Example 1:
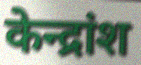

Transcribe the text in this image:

केन्द्रांश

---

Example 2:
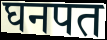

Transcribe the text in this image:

घनपत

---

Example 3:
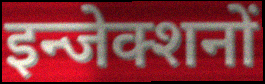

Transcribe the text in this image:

इन्जेक्शनों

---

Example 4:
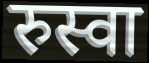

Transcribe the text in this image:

रुस्वा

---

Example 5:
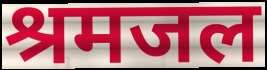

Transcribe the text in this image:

श्रमजल